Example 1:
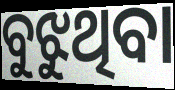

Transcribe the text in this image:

ବୁଝୁଥିବା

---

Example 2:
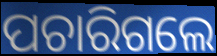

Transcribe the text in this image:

ପଚାରିଗଲେ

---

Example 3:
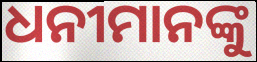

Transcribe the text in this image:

ଧନୀମାନଙ୍କୁ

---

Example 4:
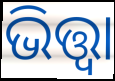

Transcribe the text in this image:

ଭିତ୍ତ୍ୱା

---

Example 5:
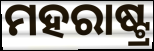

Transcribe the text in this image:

ମହରାଷ୍ଟ୍ର